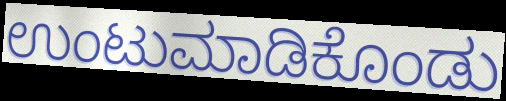
ಉಂಟುಮಾಡಿಕೊಂಡು